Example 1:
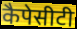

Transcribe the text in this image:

कैपेसीटी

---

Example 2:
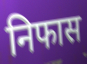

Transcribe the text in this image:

निफास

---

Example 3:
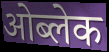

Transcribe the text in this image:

ओब्लेक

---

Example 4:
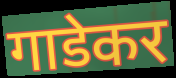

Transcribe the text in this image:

गाडेकर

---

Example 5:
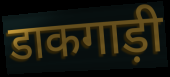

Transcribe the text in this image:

डाकगाड़ी